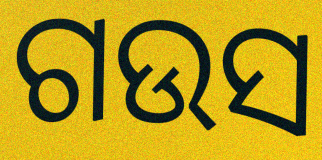
ଗଉସ